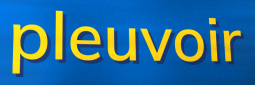
pleuvoir